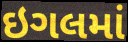
ઇગલમાં